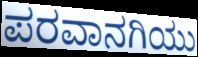
ಪರವಾನಗಿಯು